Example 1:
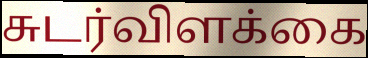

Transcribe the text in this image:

சுடர்விளக்கை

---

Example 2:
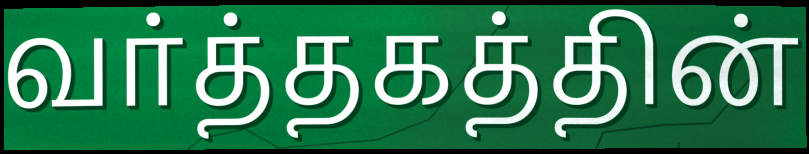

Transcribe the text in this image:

வர்த்தகத்தின்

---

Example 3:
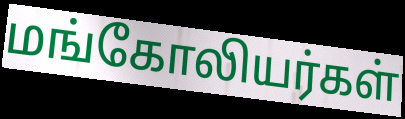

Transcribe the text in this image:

மங்கோலியர்கள்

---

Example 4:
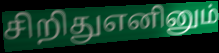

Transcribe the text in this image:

சிறிதுஎனினும்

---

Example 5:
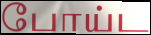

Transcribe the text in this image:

போய்ட